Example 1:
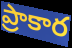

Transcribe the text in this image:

ప్రాకార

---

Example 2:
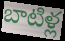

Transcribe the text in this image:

బాటిళ్ల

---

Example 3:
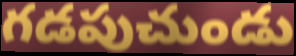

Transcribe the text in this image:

గడపుచుండు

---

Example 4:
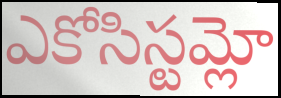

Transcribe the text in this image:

ఎకోసిస్టమ్లో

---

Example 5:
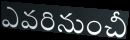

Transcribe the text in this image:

ఎవరినుంచీ